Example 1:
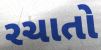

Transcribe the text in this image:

રચાતો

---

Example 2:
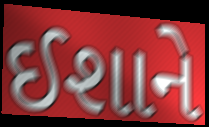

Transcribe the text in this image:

ઈશાને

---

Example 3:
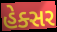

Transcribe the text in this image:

હેક્સર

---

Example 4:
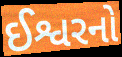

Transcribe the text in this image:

ઈશ્વરનો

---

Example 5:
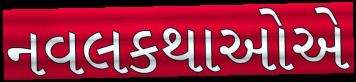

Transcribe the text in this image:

નવલકથાઓએ